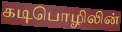
கடிபொழிலின்